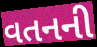
વતનની